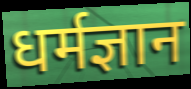
धर्मज्ञान